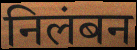
निलंबन